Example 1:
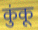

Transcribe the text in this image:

कुंकू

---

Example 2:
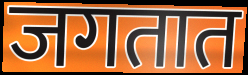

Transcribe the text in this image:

जगतात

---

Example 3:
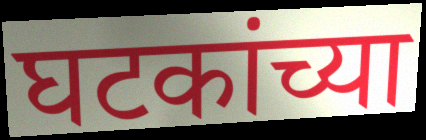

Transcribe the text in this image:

घटकांच्या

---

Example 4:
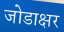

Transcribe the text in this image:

जोडाक्षर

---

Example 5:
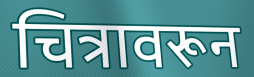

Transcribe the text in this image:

चित्रावरून